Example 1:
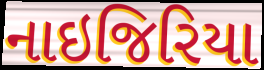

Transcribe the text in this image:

નાઇજિરિયા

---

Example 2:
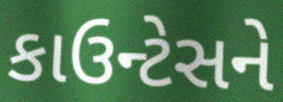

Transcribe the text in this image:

કાઉન્ટેસને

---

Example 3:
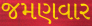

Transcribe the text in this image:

જમણવાર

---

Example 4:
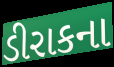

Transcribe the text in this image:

ડીરાકના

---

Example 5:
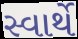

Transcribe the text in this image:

સ્વાર્થે